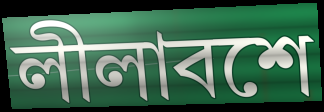
লীলাবশে